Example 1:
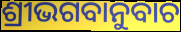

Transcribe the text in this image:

ଶ୍ରୀଭଗବାନୁବାଚ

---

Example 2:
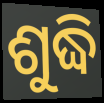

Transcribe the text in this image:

ଶୁଦ୍ଧି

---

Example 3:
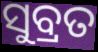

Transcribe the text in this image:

ସୁବ୍ରତ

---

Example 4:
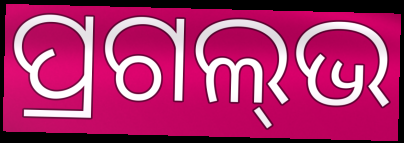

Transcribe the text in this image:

ପ୍ରଗଲ୍‌ଭ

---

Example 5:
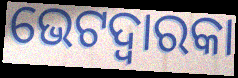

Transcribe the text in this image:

ଭେଟଦ୍ୱାରକା